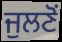
ਜੁਲਣੋਂ